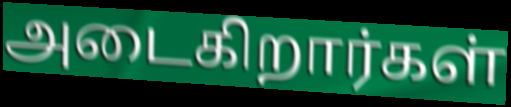
அடைகிறார்கள்